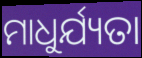
ମାଧୁର୍ଯ୍ୟତା